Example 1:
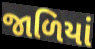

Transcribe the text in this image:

જાળિયાં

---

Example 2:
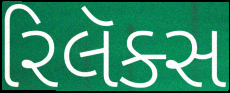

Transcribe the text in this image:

રિલૅક્સ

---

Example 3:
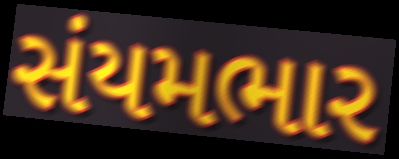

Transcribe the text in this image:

સંયમભાર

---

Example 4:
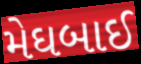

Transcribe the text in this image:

મેઘબાઈ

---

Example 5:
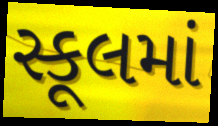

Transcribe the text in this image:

સ્કૂલમાં